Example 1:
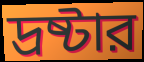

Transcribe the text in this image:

দ্রষ্টার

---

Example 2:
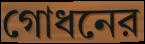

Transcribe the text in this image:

গোধনের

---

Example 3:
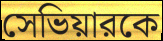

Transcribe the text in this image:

সেভিয়ারকে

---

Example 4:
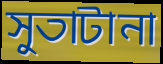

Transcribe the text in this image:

সুতাটানা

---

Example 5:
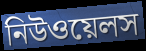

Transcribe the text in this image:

নিউওয়েলস